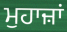
ਮੁਹਾਜ਼ਾਂ